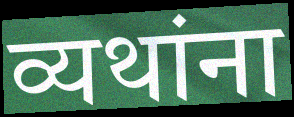
व्यथांना